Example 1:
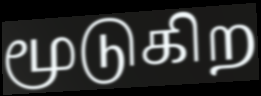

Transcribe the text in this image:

மூடுகிற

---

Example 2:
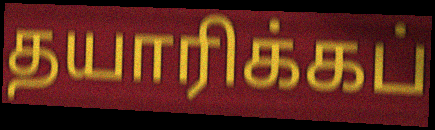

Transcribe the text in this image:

தயாரிக்கப்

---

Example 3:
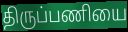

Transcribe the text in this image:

திருப்பணியை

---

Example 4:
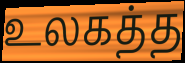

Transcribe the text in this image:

உலகத்த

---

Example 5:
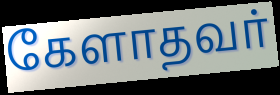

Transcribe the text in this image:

கேளாதவர்